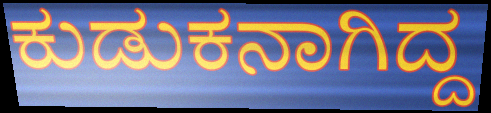
ಕುಡುಕನಾಗಿದ್ದ